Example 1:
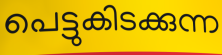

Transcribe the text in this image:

പെട്ടുകിടക്കുന്ന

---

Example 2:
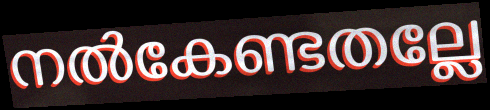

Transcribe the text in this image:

നൽകേണ്ടതല്ലേ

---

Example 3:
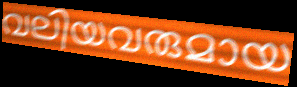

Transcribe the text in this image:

വലിയവരുമായ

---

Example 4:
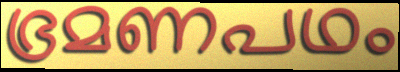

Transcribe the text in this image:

ഭ്രമണപഥം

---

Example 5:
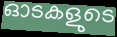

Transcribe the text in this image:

ഓടകളുടെ